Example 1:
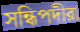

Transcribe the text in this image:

সন্ধিপদীরা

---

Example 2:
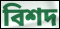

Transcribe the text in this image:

বিশদ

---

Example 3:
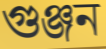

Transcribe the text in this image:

গুঞ্জন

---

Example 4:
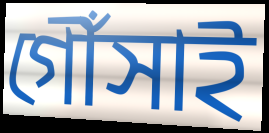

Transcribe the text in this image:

গৌঁসাই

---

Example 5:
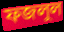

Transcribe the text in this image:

ফজলুল